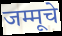
जम्मूचे